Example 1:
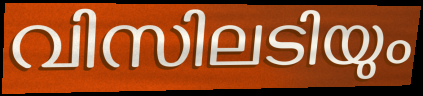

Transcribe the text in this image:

വിസിലടിയും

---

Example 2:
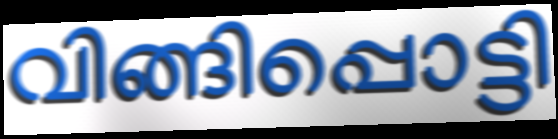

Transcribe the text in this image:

വിങ്ങിപ്പൊട്ടി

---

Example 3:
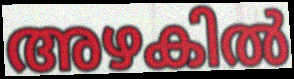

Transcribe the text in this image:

അഴകിൽ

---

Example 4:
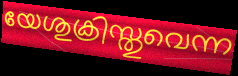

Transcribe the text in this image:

യേശുക്രിസ്തുവെന്ന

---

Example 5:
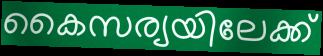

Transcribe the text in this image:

കൈസര്യയിലേക്ക്